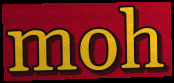
moh